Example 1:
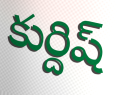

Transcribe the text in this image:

కుర్దిష్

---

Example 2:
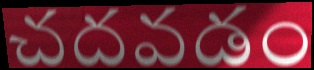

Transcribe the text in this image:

చదవడం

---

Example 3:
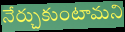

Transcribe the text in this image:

నేర్చుకుంటామని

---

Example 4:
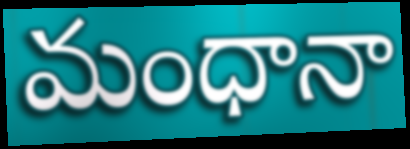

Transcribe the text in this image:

మంధానా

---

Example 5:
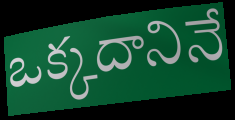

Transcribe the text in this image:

ఒక్కదానినే